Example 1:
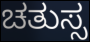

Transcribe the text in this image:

ಚತುಸ್ಸ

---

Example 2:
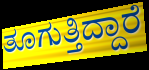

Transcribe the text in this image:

ತೂಗುತ್ತಿದ್ದಾರೆ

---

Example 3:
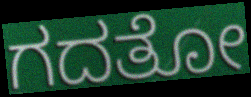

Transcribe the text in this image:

ಗದತೋ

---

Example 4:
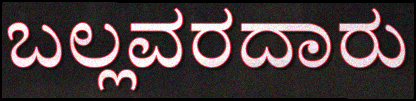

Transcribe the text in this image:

ಬಲ್ಲವರದಾರು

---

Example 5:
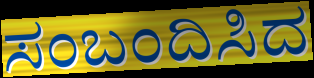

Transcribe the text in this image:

ಸಂಬಂದಿಸಿದ